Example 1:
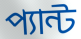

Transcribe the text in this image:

প্যান্ট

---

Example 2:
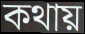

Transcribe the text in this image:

কথায়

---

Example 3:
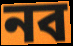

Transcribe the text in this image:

নব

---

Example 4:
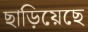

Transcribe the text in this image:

ছাড়িয়েছে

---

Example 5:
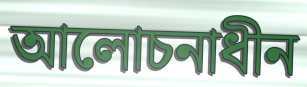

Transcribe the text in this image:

আলোচনাধীন